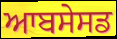
ਆਬਸੇਸਡ